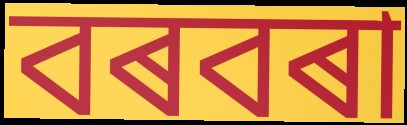
বৰবৰা